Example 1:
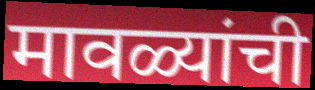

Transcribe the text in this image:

मावळ्यांची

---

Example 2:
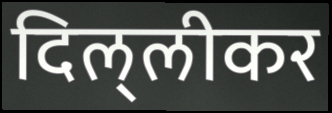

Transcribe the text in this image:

दिल्लीकर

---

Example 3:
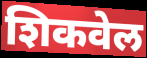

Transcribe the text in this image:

शिकवेल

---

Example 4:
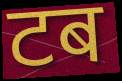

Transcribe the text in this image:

टब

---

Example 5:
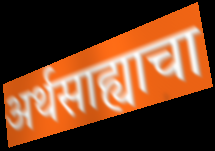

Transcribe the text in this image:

अर्थसाह्याचा